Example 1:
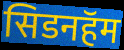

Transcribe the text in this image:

सिडनहॅम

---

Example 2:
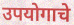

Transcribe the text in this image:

उपयोगाचे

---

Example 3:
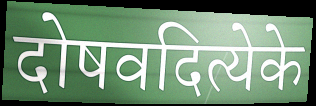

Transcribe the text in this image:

दोषवदित्येके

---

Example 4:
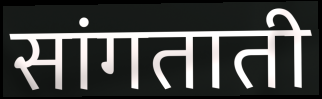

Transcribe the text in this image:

सांगताती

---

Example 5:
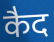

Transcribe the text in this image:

कैद